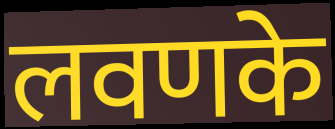
लवणके